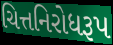
ચિત્તનિરોધરૂપ